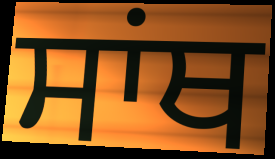
ਸਾਂਥ